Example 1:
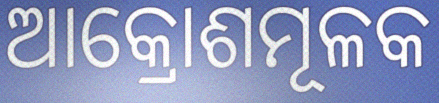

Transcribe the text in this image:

ଆକ୍ରୋଶମୂଳକ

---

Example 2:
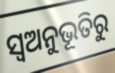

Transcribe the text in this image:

ସ୍ୱଅନୁଭୂତିରୁ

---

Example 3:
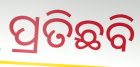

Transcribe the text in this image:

ପ୍ରତିଛବି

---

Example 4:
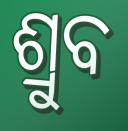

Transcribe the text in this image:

ଶ୍ରୁବ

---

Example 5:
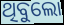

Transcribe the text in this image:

ଥିବୁଲୋ